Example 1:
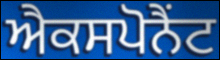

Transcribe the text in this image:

ਐਕਸਪੋਨੈਂਟ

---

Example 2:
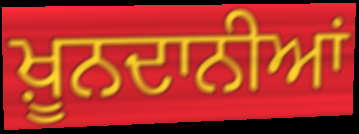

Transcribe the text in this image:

ਖ਼ੂਨਦਾਨੀਆਂ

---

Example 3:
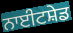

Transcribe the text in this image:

ਨਾਈਟਸ਼ੇਡ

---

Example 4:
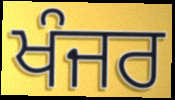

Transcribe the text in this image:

ਖੰਜਰ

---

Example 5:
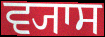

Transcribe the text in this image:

ਵ੍ਯਾਸ